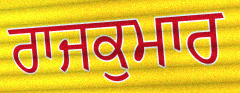
ਰਾਜਕੁਮਾਰ